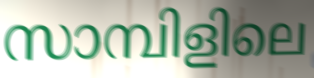
സാമ്പിളിലെ